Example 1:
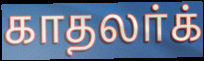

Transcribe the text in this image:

காதலர்க்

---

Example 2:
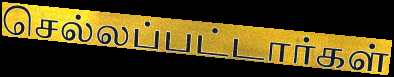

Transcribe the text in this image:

செல்லப்பட்டார்கள்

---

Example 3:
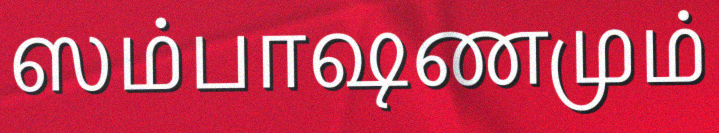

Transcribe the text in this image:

ஸம்பாஷணமும்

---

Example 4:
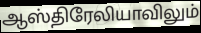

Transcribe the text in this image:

ஆஸ்திரேலியாவிலும்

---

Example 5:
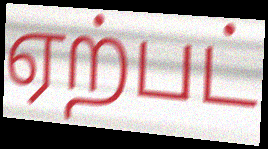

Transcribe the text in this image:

ஏற்பட்